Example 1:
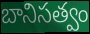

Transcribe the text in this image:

బానిసత్వం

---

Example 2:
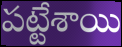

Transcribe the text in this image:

పట్టేశాయి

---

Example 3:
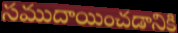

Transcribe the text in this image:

సముదాయించడానికి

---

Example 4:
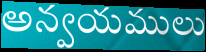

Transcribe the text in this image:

అన్వయములు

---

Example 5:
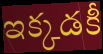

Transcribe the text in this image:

ఇక్కడకీ